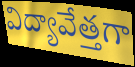
విద్యావేత్తగా